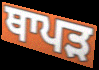
ਥਾਪੜ